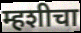
म्हशीचा